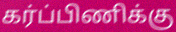
கர்ப்பிணிக்கு